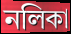
নলিকা